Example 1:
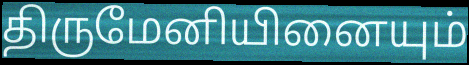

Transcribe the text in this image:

திருமேனியினையும்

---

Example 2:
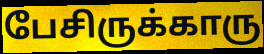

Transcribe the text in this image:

பேசிருக்காரு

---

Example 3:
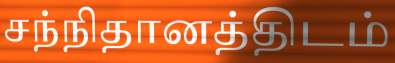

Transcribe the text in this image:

சந்நிதானத்திடம்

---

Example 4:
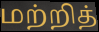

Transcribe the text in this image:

மற்றித்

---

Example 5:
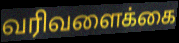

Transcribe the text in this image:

வரிவளைக்கை